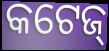
କଟେଜ୍